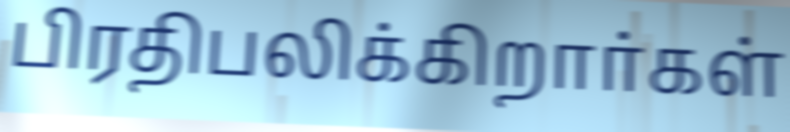
பிரதிபலிக்கிறார்கள்